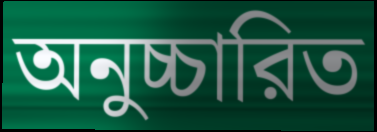
অনুচ্চারিত